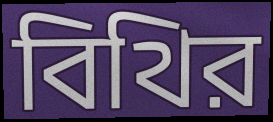
বিথির